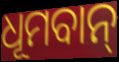
ଧୂମବାନ୍